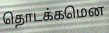
தொடக்கமென